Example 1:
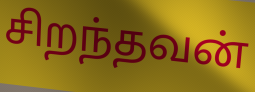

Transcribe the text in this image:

சிறந்தவன்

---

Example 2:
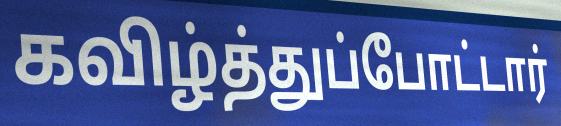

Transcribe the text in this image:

கவிழ்த்துப்போட்டார்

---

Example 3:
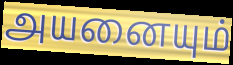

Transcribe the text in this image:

அயனையும்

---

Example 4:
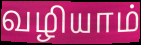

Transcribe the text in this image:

வழியாம்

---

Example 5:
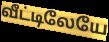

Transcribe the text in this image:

வீட்டிலேயே